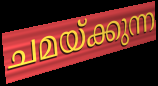
ചമയ്ക്കുന്ന